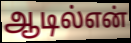
ஆடில்என்